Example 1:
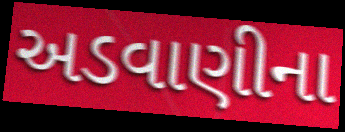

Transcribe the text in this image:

અડવાણીના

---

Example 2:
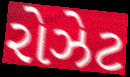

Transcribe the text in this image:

રોઝેટ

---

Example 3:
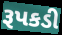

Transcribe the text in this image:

રૂપકડી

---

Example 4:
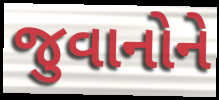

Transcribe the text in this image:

જુવાનોને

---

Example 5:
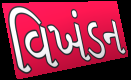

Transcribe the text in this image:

વિખંડન